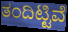
ತಂದಿಟ್ಟಿವೆ